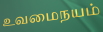
உவமைநயம்